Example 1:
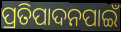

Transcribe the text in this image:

ପ୍ରତିପାଦନପାଇଁ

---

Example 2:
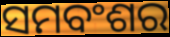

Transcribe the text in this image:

ସମବଂଶର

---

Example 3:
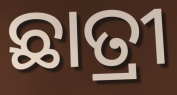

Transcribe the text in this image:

ଛାତ୍ରୀ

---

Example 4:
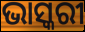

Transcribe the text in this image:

ଭାସ୍କରୀ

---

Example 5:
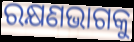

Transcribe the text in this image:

ରକ୍ଷଣଭାଗକୁ